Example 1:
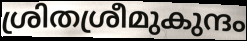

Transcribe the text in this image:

ശ്രിതശ്രീമുകുന്ദം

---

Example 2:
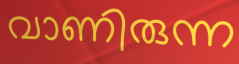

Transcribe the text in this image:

വാണിരുന്ന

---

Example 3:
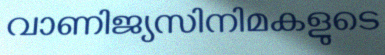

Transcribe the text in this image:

വാണിജ്യസിനിമകളുടെ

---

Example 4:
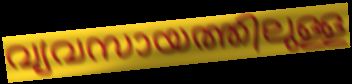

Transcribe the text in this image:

വ്യവസായത്തിലുള്ള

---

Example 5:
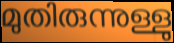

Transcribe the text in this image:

മുതിരുന്നുള്ളു